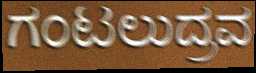
ಗಂಟಲುದ್ರವ